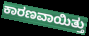
ಕಾರಣವಾಯಿತ್ತು